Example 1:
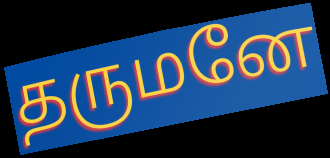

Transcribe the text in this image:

தருமனே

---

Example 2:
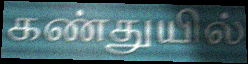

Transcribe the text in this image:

கண்துயில்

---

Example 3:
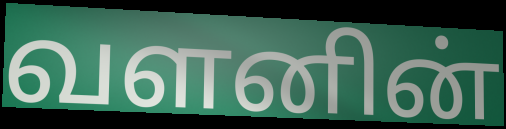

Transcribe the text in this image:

வளனின்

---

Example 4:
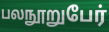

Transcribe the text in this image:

பலநூறுபேர்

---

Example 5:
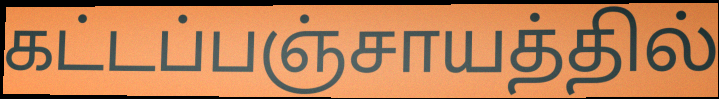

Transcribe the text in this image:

கட்டப்பஞ்சாயத்தில்